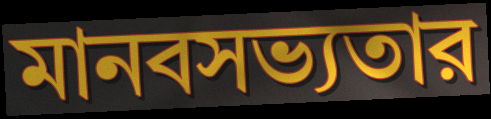
মানবসভ্যতার